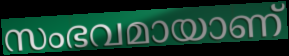
സംഭവമായാണ്